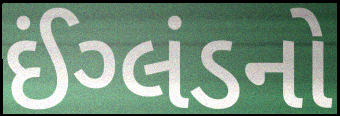
ઈંગ્લંડનો